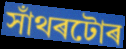
সাঁথৰটোৰ